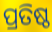
ପ୍ରତିଷ୍ଠ